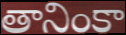
తానింకా